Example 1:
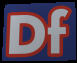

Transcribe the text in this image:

Df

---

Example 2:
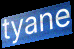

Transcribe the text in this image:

tyane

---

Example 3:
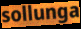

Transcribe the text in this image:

sollunga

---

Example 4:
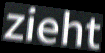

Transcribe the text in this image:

zieht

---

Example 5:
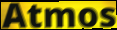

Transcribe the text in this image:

Atmos